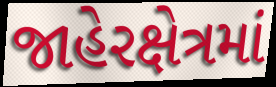
જાહેરક્ષેત્રમાં